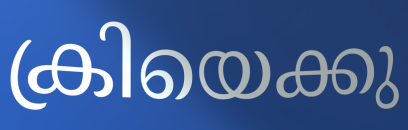
ക്രിയെക്കു